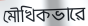
মৌখিকভাৱে